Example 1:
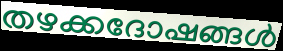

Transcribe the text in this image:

തഴക്കദോഷങ്ങൾ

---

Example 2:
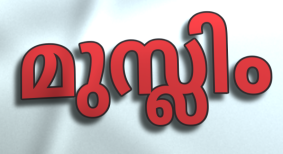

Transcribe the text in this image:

മുസ്ലിം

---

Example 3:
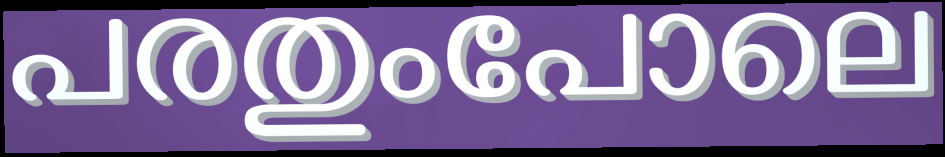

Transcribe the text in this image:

പരതുംപോലെ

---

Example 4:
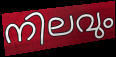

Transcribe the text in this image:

നിലവും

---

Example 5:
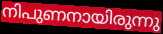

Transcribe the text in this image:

നിപുണനായിരുന്നു